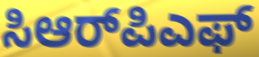
ಸಿಆರ್‌ಪಿಎಫ್